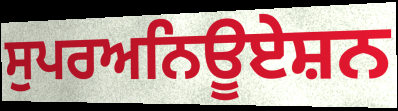
ਸੁਪਰਅਨਿਊਏਸ਼ਨ